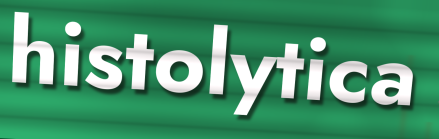
histolytica